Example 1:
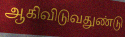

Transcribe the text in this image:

ஆகிவிடுவதுண்டு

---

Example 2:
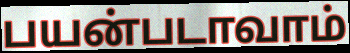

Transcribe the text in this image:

பயன்படாவாம்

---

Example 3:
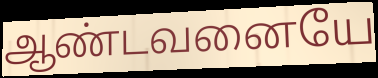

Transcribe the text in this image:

ஆண்டவனையே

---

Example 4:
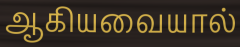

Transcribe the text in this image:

ஆகியவையால்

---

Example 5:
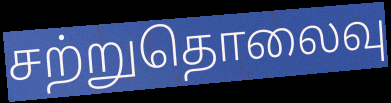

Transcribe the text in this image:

சற்றுதொலைவு